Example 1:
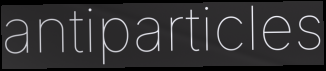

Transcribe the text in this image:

antiparticles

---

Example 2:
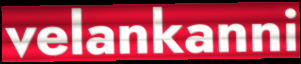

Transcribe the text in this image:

velankanni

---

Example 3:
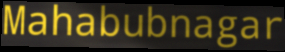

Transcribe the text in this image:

Mahabubnagar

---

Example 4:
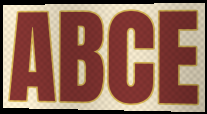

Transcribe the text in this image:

ABCE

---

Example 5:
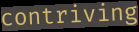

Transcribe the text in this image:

contriving